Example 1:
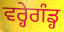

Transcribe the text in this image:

ਵਰ੍ਹੇਗੰਡ੍ਹ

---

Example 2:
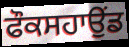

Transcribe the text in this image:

ਫੌਕਸਹਾਉਂਡ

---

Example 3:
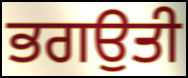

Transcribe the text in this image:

ਭਗਉਤੀ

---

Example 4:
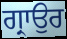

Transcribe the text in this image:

ਗ੍ਰਾਉਰ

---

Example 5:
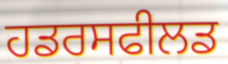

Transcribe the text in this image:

ਹਡਰਸਫੀਲਡ